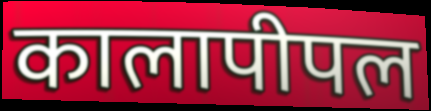
कालापीपल